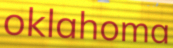
oklahoma